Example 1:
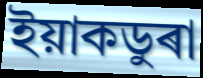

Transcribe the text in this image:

ইয়াকডুৰা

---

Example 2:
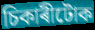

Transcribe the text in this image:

চিকাৰীটোক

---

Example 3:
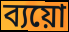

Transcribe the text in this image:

ব্যয়ো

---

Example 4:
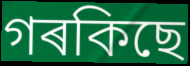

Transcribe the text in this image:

গৰকিছে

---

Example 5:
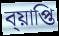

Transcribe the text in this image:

ব্য়াপ্তি